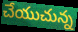
చేయుచున్న